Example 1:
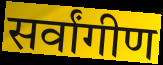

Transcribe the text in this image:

सर्वांगीण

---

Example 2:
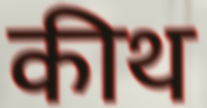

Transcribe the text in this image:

कीथ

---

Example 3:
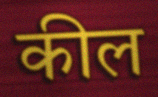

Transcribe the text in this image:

कील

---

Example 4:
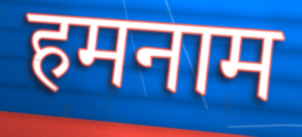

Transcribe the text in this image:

हमनाम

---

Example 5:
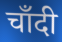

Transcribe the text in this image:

चाँदी